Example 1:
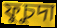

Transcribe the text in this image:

ফুচুদা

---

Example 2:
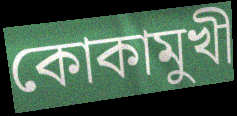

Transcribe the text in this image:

কোকামুখী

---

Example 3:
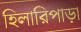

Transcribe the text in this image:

হিলারিপাড়া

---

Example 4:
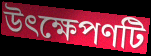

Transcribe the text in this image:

উৎক্ষেপণটি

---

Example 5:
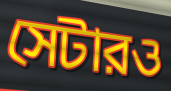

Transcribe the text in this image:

সেটারও